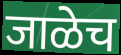
जाळेच